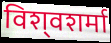
विश्वशर्मा